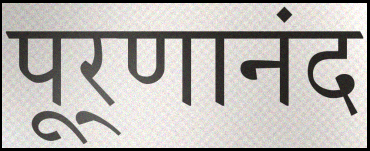
पूर्णानंद